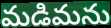
మడిమను